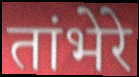
तांभेरे